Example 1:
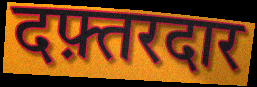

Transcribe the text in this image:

दफ़्तरदार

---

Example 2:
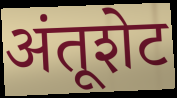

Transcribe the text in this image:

अंतूशेट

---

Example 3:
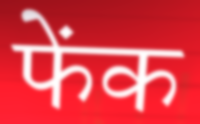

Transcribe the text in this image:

फेंक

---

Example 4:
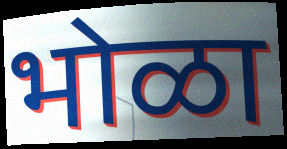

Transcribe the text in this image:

भोळा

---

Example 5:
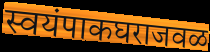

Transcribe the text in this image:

स्वयंपाकघराजवळ